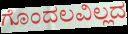
ಗೊಂದಲವಿಲ್ಲದ